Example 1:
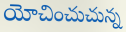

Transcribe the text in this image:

యోచించుచున్న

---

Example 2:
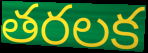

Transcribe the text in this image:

తరలక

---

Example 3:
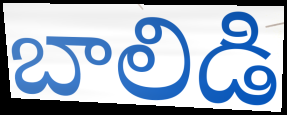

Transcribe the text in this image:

బాలిడి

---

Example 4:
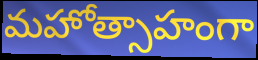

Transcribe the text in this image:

మహోత్సాహంగా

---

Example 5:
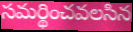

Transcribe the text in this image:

సమర్థించవలసిన